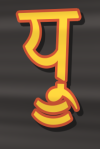
ਧ੍ਰੂ